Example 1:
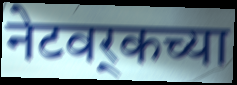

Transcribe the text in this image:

नेटवर्कच्या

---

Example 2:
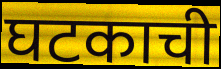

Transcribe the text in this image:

घटकाची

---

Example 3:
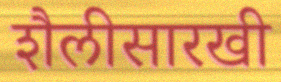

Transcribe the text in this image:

शैलीसारखी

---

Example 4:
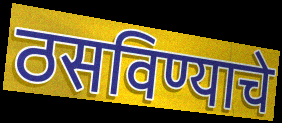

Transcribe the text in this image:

ठसविण्याचे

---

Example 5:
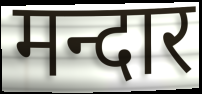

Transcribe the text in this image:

मन्दार